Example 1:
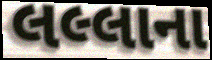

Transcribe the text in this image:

લલ્લાના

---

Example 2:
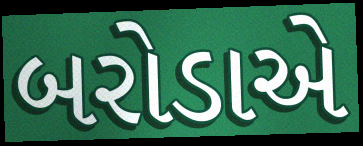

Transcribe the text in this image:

બરોડાએ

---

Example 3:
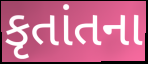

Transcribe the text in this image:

કૃતાંતના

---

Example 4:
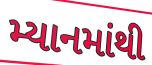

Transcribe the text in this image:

મ્યાનમાંથી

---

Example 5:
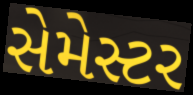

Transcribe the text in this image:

સેમેસ્ટર